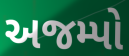
અજમ્પો